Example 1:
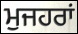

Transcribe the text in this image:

ਮੁਜਹਰਾਂ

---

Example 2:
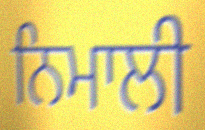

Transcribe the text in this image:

ਨਿਮਾਲੀ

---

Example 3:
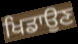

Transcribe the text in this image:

ਖਿਡਾਉਣ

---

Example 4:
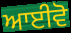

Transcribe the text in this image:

ਆਈਵੋ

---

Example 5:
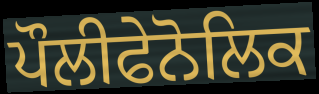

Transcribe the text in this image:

ਪੌਲੀਫੇਨੋਲਿਕ